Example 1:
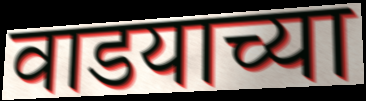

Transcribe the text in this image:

वाडयाच्या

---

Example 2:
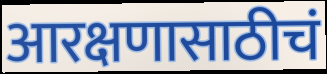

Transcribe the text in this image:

आरक्षणासाठीचं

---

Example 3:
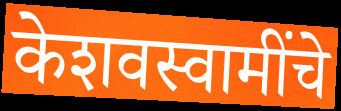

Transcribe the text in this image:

केशवस्वामींचे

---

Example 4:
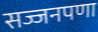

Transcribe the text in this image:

सज्जनपणा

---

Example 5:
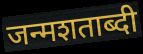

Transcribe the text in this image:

जन्मशताब्दी